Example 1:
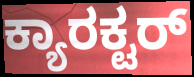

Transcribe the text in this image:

ಕ್ಯಾರಕ್ಟರ್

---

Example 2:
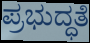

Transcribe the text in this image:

ಪ್ರಭುದ್ಧತೆ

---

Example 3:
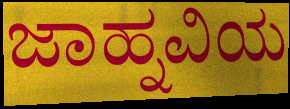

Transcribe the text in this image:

ಜಾಹ್ನವಿಯ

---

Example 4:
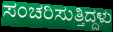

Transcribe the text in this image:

ಸಂಚರಿಸುತ್ತಿದ್ದಳು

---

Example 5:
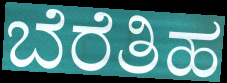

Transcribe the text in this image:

ಬೆರೆತಿಹ